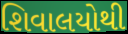
શિવાલયોથી